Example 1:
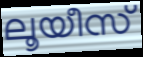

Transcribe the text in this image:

ലൂയീസ്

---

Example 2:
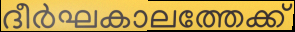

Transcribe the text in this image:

ദീർഘകാലത്തേക്ക്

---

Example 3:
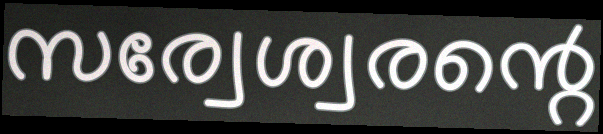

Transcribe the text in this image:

സര്വേശ്വരന്റെ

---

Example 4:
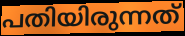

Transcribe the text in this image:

പതിയിരുന്നത്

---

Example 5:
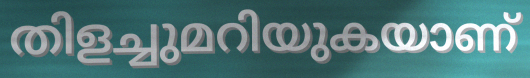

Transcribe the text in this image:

തിളച്ചുമറിയുകയാണ്